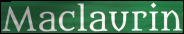
Maclaurin